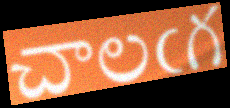
చాలఁగ